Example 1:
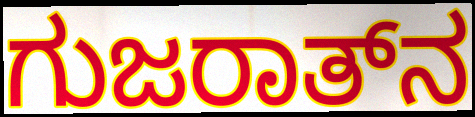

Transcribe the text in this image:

ಗುಜರಾತ್‍ನ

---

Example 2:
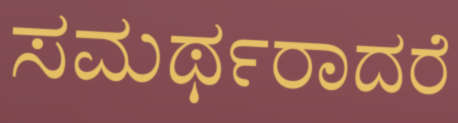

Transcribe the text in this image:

ಸಮರ್ಥರಾದರೆ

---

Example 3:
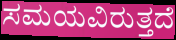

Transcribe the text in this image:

ಸಮಯವಿರುತ್ತದೆ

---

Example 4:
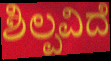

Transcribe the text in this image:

ಶಿಲ್ಪವಿದೆ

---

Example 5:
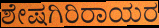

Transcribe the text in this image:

ಶೇಷಗಿರಿರಾಯರ